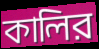
কালির